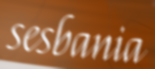
sesbania